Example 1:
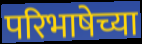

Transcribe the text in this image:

परिभाषेच्या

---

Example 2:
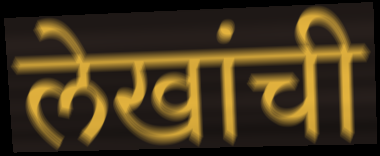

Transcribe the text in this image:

लेखांची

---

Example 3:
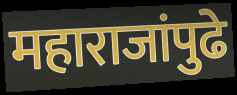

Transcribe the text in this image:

महाराजांपुढे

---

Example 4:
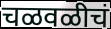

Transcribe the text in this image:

चळवळीचं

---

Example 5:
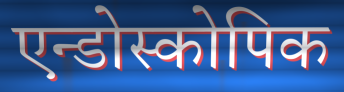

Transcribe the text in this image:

एन्डोस्कोपिक